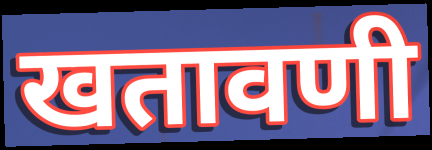
खतावणी